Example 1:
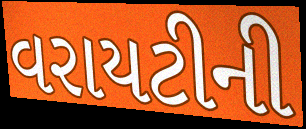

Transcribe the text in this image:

વરાયટીની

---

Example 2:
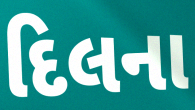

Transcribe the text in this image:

દિલના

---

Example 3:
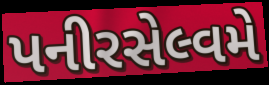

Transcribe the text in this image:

પનીરસેલ્વમે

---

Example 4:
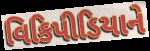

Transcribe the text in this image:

વિકિપીડિયાને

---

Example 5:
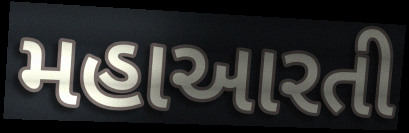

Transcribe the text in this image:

મહાઆરતી